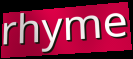
rhyme